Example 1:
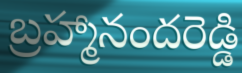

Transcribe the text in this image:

బ్రహ్మానందరెడ్డి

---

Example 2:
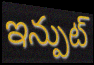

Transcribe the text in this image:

ఇన్పుట్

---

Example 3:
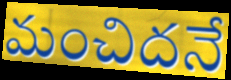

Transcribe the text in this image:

మంచిదనే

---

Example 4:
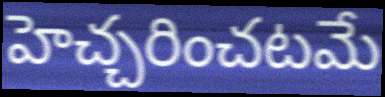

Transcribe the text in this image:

హెచ్చరించటమే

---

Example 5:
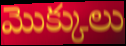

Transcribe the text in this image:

మొక్కులు